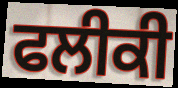
ਫਲੀਕੀ